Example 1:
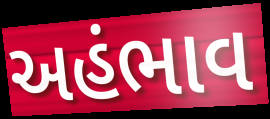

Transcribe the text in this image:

અહંભાવ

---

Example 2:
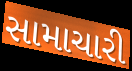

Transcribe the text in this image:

સામાચારી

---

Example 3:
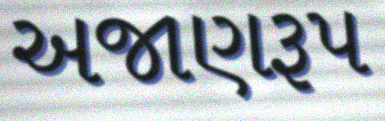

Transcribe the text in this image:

અજાણરૂપ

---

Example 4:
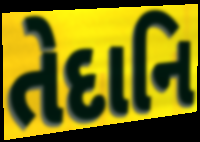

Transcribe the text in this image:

તેદાનિ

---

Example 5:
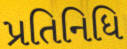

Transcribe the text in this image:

પ્રતિનિધિ